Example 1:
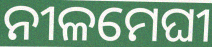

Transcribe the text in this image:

ନୀଳମେଘୀ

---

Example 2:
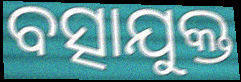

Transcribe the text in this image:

ବତ୍ସାଯୁକ୍ତ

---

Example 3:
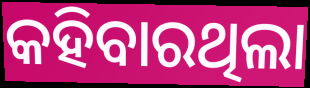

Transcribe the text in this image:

କହିବାରଥିଲା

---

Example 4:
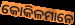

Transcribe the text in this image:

କୋକିଳମାନେ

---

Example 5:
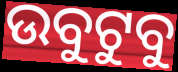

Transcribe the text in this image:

ଉବୁଟୁବୁ